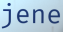
jene